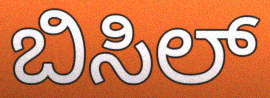
ಬಿಸಿಲ್